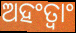
ଅହଂତ୍ୱାଂ